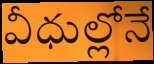
వీధుల్లోనే